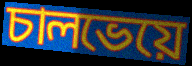
চালভেয়ে